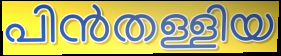
പിൻതള്ളിയ